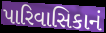
પારિવાસિકાનં